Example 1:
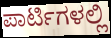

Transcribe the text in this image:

ಪಾರ್ಟಿಗಳಲ್ಲಿ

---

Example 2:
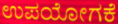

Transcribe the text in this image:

ಉಪಯೋಗಕೆ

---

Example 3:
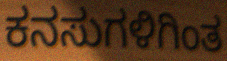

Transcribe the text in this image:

ಕನಸುಗಳಿಗಿಂತ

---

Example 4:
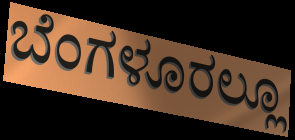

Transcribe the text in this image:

ಬೆಂಗಳೂರಲ್ಲೂ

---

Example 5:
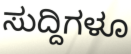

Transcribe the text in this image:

ಸುದ್ದಿಗಳೂ